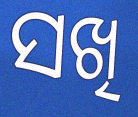
ସଖି